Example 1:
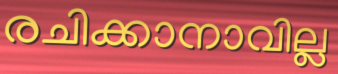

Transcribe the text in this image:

രചിക്കാനാവില്ല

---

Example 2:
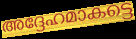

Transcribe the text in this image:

അദ്ദേഹമാകട്ടെ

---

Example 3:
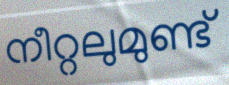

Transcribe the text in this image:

നീറ്റലുമുണ്ട്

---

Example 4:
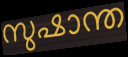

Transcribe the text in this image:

സുഷാന്ത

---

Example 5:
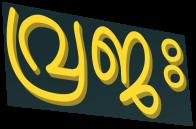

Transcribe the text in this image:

വ്രജഃ